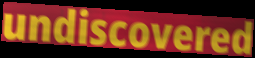
undiscovered